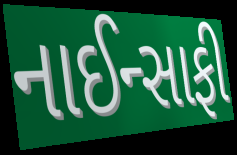
નાઈન્સાફી